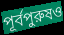
পূর্বপুরুষও